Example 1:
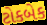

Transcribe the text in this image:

ટોકબેક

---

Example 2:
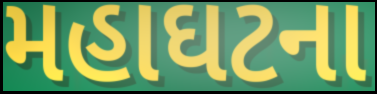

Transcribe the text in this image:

મહાઘટના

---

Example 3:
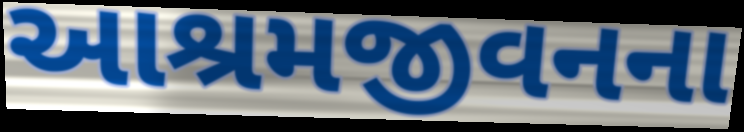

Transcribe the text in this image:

આશ્રમજીવનના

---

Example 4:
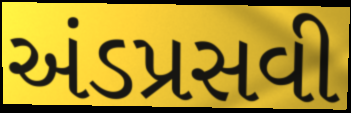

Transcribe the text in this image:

અંડપ્રસવી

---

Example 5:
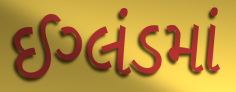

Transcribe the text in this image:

ઈગ્લંડમાં